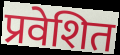
प्रवेशित